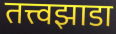
तत्त्वझाडा